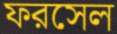
ফরসেল